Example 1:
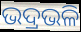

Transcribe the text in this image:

ଭଦ୍ରଭଳି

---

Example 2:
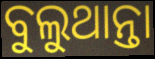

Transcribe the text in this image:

ବୁଲୁଥାନ୍ତା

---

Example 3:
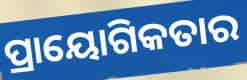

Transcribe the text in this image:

ପ୍ରାୟୋଗିକତାର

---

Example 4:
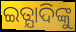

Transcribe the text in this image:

ଇତ୍ଯାଦିଙ୍କୁ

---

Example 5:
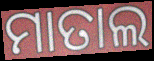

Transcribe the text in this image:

ମାତାଲ